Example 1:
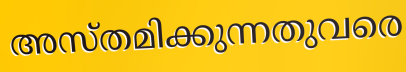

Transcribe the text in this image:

അസ്തമിക്കുന്നതുവരെ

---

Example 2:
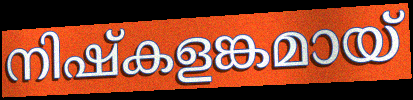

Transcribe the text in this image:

നിഷ്കളങ്കമായ്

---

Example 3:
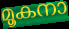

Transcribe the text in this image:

മൂകനാ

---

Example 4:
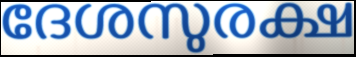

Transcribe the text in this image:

ദേശസുരക്ഷ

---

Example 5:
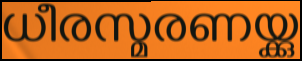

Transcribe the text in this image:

ധീരസ്മരണയ്ക്കു